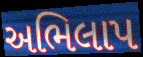
અભિલાપ